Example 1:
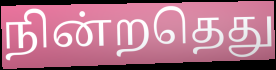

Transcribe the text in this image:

நின்றதெது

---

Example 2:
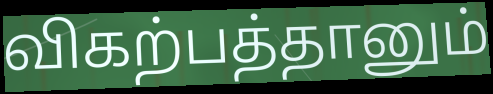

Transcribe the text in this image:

விகற்பத்தானும்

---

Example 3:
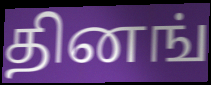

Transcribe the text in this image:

தினங்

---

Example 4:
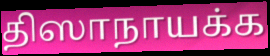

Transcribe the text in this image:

திஸாநாயக்க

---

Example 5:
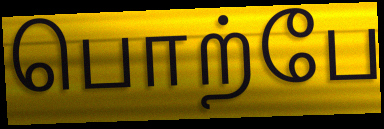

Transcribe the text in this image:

பொற்பே